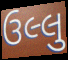
ઉલ્લુ